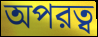
অপরত্ব